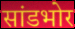
सांडभोर